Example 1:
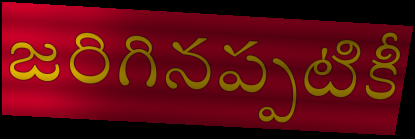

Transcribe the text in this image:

జరిగినప్పటికీ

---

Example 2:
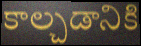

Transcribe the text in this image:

కాల్చడానికి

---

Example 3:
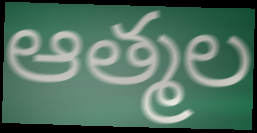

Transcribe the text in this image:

ఆత్మల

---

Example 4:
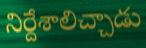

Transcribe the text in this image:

నిర్దేశాలిచ్చాడు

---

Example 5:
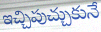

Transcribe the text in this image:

ఇచ్చిపుచ్చుకునే